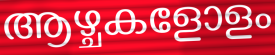
ആഴ്ചകളോളം